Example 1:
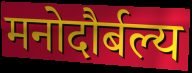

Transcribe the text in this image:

मनोदौर्बल्य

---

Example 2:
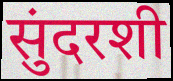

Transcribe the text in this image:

सुंदरशी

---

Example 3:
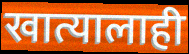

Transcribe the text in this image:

खात्यालाही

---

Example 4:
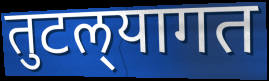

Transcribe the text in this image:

तुटल्यागत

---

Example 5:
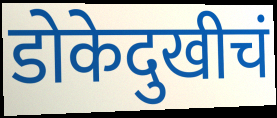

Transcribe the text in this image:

डोकेदुखीचं